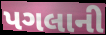
પગલાની